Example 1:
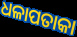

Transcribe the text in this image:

ଧଳାପତାକା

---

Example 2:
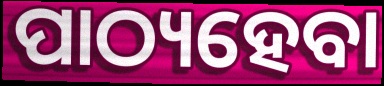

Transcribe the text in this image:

ପାଠ୍ୟହେବା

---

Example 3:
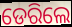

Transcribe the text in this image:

ଡେରିଲେ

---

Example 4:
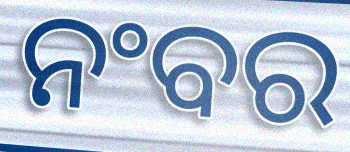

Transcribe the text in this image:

ନଂବର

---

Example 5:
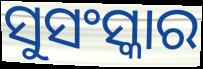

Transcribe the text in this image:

ସୁସଂସ୍କାର